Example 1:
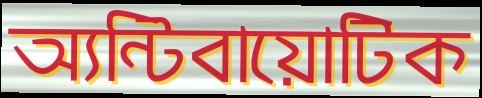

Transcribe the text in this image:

অ্যন্টিবায়োটিক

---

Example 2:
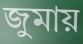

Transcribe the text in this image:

জুমায়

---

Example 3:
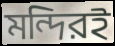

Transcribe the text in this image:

মন্দিরই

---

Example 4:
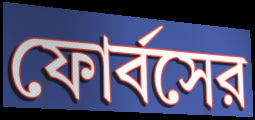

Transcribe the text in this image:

ফোর্বসের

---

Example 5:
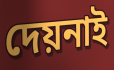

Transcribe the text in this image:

দেয়নাই